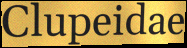
Clupeidae